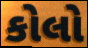
કોલો